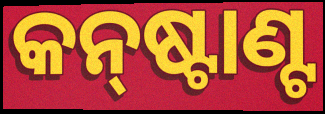
କନ୍‌ଷ୍ଟାଣ୍ଟ